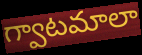
గ్వాటమాలా